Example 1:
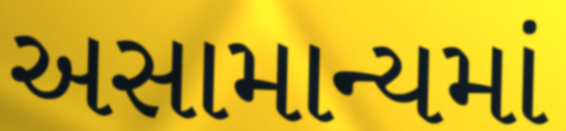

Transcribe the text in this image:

અસામાન્યમાં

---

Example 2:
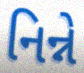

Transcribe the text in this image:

નિન્ને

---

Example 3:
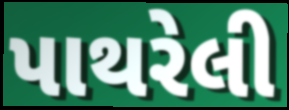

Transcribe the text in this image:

પાથરેલી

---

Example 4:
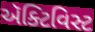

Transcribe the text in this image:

ઍક્ટિવિસ્ટ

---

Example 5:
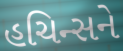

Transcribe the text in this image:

હચિન્સને